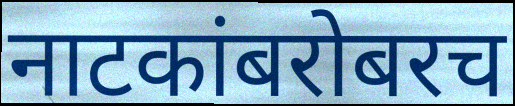
नाटकांबरोबरच